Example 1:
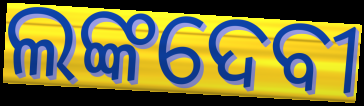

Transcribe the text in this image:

ଲଙ୍କଦେବୀ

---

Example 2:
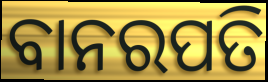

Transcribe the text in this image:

ବାନରପତି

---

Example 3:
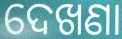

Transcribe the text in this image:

ଦେଖଣା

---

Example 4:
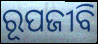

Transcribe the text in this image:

ରୂପଜୀବି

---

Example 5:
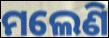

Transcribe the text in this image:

ମଲେଣି